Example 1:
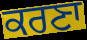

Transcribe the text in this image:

ਕਰਣਾ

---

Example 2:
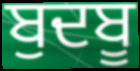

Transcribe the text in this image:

ਬੁਦਬੂ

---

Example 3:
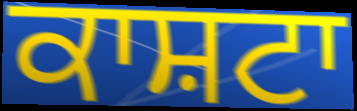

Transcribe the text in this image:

ਕਾਸ਼ਟਾ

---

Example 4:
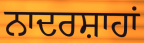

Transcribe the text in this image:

ਨਾਦਰਸ਼ਾਹਾਂ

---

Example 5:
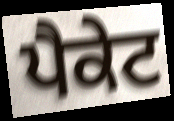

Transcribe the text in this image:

ਪੈਕੇਟ